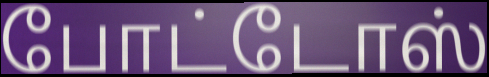
போட்டோஸ்